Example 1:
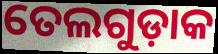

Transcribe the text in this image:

ତେଲଗୁଡ଼ାକ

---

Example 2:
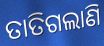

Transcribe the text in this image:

ତାତିଗଲାଣି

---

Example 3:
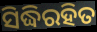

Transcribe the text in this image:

ସିଦ୍ଧିରହିତ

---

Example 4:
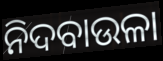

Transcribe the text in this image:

ନିଦବାଉଳା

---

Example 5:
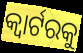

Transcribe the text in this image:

କ୍ୱାର୍ଟରକୁ